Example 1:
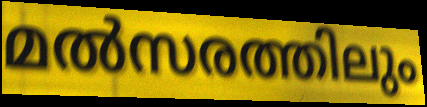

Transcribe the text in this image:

മൽസരത്തിലും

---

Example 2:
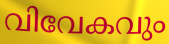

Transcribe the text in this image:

വിവേകവും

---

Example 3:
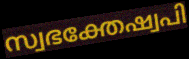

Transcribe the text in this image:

സ്വഭക്തേഷ്വപി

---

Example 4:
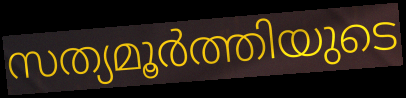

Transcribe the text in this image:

സത്യമൂർത്തിയുടെ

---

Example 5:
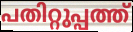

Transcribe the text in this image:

പതിറ്റുപ്പത്ത്